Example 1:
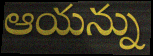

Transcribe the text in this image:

ఆయన్ను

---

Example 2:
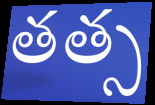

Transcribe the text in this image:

తత్స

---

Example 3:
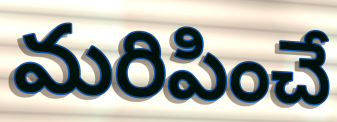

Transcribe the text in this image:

మరిపించే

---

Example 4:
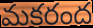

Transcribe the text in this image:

మకరంద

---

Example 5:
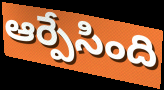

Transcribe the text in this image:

ఆర్పేసింది